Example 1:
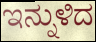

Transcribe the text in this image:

ಇನ್ನುಳಿದ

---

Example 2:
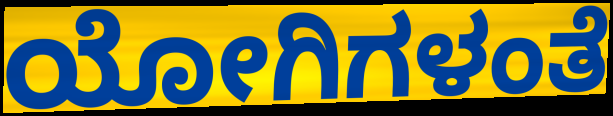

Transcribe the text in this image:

ಯೋಗಿಗಳಂತೆ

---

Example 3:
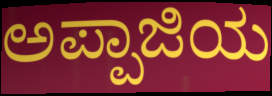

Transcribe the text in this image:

ಅಪ್ಪಾಜಿಯ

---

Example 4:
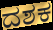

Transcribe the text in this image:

ದಶಕ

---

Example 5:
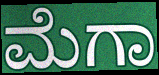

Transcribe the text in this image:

ಮೆಗಾ